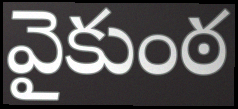
వైకుంఠ